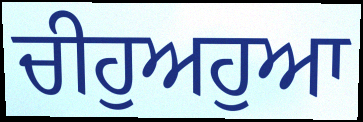
ਚੀਹੁਅਹੁਆ